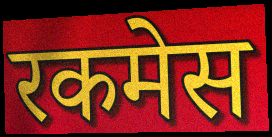
रकमेस